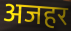
अजहर